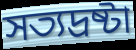
সত্যদ্রষ্টা